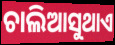
ଚାଲିଆସୁଥାଏ